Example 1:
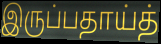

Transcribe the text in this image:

இருப்பதாய்த்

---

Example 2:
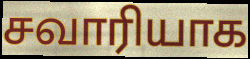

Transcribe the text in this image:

சவாரியாக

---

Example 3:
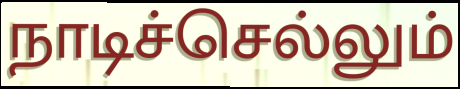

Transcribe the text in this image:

நாடிச்செல்லும்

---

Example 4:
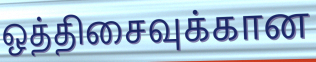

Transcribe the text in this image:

ஒத்திசைவுக்கான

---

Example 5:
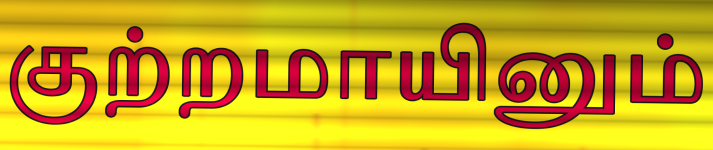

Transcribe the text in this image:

குற்றமாயினும்